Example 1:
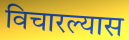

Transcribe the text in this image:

विचारल्यास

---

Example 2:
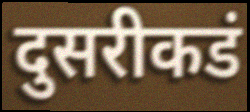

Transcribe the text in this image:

दुसरीकडं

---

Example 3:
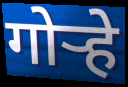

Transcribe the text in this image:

गोऱ्हे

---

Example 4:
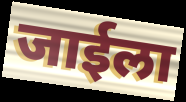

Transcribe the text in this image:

जाईला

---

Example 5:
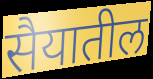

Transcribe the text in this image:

सैयातील